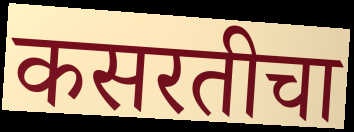
कसरतीचा